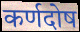
कर्णदोष